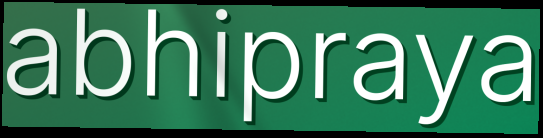
abhipraya